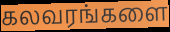
கலவரங்களை